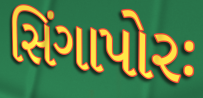
સિંગાપોરઃ